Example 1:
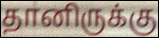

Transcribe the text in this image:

தானிருக்கு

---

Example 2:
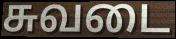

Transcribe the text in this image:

சுவடை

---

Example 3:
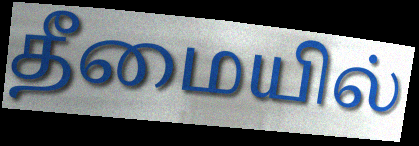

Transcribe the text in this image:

தீமையில்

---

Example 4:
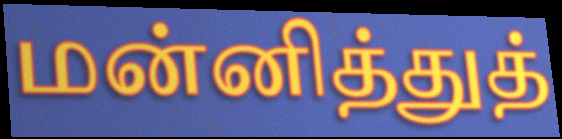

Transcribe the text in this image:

மன்னித்துத்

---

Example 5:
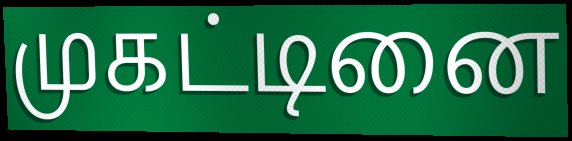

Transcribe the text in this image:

முகட்டினை